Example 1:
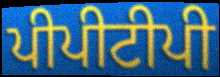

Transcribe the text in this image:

ਪੀਪੀਟੀਪੀ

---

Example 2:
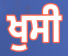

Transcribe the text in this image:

ਖੁਸੀ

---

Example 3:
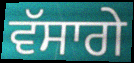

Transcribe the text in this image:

ਵੱਸਾਗੇ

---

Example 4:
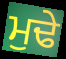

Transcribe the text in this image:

ਮੁਢੇ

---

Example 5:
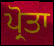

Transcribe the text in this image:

ਪ੍ਰੋਤਾ